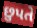
છુપતે